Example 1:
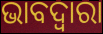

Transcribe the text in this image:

ଭାବଦ୍ଵାରା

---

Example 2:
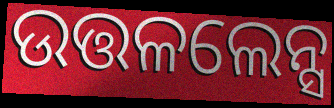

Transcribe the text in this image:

ଉତ୍ତଳଲେନ୍ସ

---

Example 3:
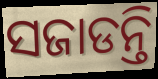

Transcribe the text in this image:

ସଜାଡନ୍ତି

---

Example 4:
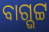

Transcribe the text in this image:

ବାଗ୍ଭଟ୍ଟ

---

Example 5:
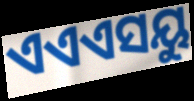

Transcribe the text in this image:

ଏଏଏସୟୁ